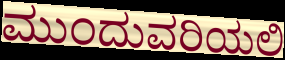
ಮುಂದುವರಿಯಲಿ